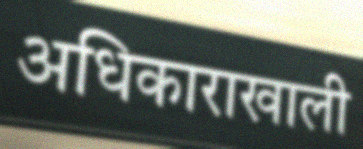
अधिकाराखाली